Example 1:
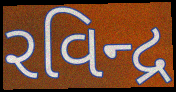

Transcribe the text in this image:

રવિન્દ્ર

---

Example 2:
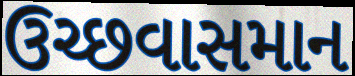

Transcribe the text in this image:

ઉચ્છવાસમાન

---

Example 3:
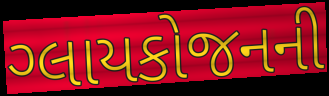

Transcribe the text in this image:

ગ્લાયકોજનની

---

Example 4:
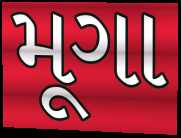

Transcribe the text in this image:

મૂગા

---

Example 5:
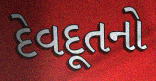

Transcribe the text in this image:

દેવદૂતનો